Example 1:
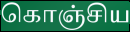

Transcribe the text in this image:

கொஞ்சிய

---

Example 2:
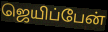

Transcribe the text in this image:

ஜெயிப்பேன்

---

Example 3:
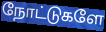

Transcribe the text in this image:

நோட்டுகளே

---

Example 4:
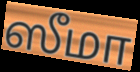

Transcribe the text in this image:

ஸீமா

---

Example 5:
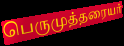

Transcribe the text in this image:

பெருமுத்தரையர்